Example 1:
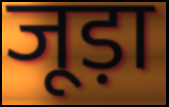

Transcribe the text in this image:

जूड़ा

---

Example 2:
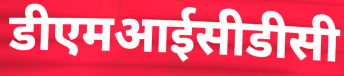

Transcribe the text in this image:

डीएमआईसीडीसी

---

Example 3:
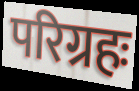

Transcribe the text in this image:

परिग्रहः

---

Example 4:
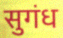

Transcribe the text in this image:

सुगंध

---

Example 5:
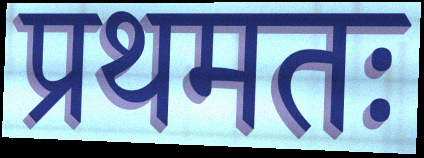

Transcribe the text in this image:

प्रथमतः